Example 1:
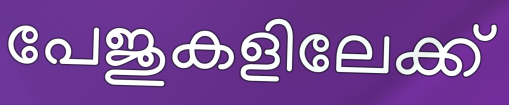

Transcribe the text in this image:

പേജുകളിലേക്ക്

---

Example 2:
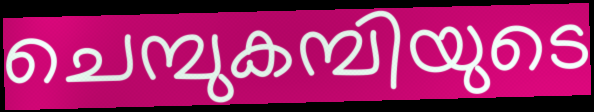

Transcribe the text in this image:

ചെമ്പുകമ്പിയുടെ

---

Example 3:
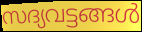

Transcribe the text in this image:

സദ്യവട്ടങ്ങൾ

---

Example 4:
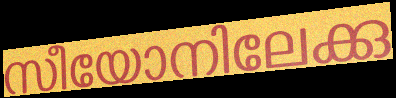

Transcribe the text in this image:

സീയോനിലേക്കു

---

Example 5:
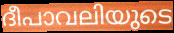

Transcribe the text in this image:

ദീപാവലിയുടെ